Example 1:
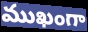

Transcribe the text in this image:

ముఖంగా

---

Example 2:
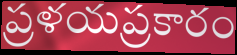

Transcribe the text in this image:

ప్రళయప్రకారం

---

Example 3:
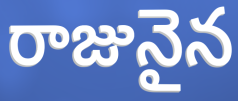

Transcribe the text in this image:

రాజునైన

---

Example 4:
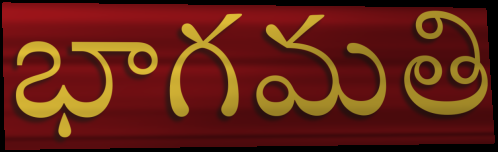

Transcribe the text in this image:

భాగమతి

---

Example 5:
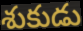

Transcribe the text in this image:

శుకుడు